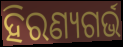
ହିରଣ୍ୟଗର୍ଭ